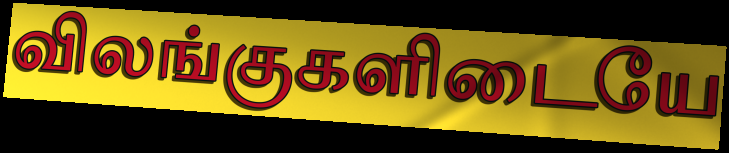
விலங்குகளிடையே